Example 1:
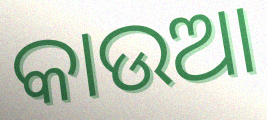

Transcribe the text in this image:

କାଉଆ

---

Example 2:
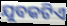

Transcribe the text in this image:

ଯୁବକଟିଏ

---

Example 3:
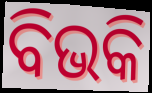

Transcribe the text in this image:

ବିଭକି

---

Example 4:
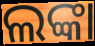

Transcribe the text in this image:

ଲଙ୍କା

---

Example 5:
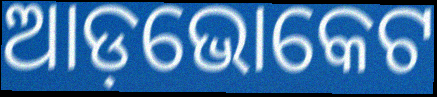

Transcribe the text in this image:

ଆଡ଼ଭୋକେଟ